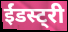
ईंडस्ट्री